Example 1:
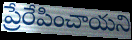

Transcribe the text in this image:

ప్రేరేపించాయని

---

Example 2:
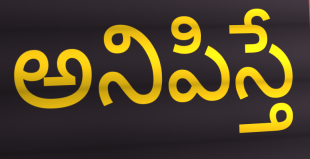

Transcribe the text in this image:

అనిపిస్తే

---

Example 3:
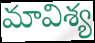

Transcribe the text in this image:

మావిశ్య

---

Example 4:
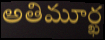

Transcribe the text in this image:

అతిమూర్ఖ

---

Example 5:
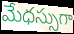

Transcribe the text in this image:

మేధస్సుగా